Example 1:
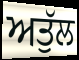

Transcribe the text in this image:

ਅਤੁੱਲ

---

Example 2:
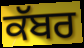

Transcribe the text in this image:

ਕੱਬਰ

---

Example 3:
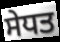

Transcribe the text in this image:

ਸੇਧਤ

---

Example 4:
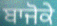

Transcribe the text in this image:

ਬਾਜੋਕੇ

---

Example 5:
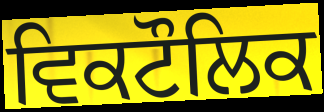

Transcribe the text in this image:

ਵਿਕਟੌਲਿਕ